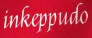
inkeppudo